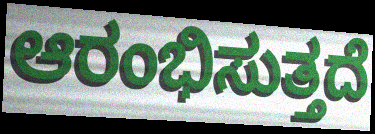
ಆರಂಭಿಸುತ್ತದೆ